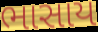
ભાસાય